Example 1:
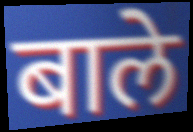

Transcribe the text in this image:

बाले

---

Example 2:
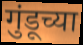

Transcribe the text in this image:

गुंडूच्या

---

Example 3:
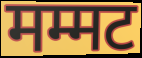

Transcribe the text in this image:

मम्मट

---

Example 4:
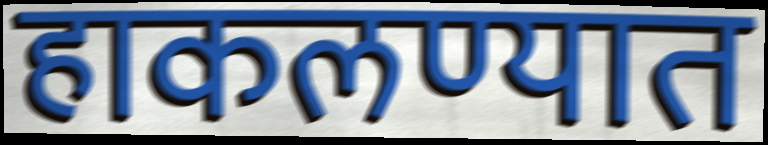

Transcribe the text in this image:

हाकलण्यात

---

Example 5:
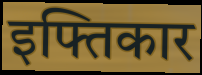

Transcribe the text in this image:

इफ्तिकार